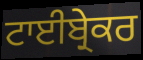
ਟਾਈਬ੍ਰੇਕਰ